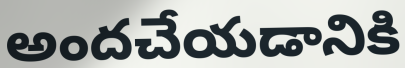
అందచేయడానికి